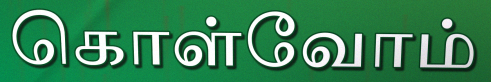
கொள்வோம்